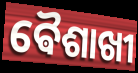
ଵୈଶାଖୀ